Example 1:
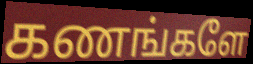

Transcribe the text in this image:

கணங்களே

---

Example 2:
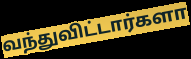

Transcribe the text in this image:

வந்துவிட்டார்களா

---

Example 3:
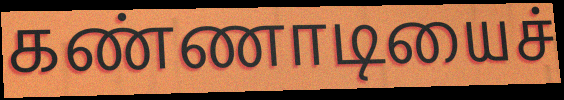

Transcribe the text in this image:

கண்ணாடியைச்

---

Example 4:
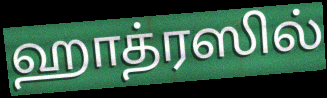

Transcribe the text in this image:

ஹாத்ரஸில்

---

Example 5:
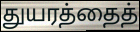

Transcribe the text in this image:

துயரத்தைத்